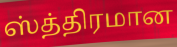
ஸ்த்திரமான